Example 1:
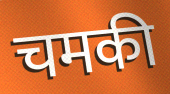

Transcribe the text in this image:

चमकी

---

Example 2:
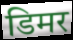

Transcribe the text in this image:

डिमर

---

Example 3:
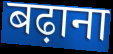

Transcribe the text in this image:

बढ़ाना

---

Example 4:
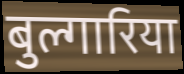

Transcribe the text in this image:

बुल्गारिया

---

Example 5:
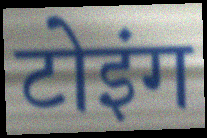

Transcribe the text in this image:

टोइंग